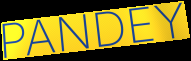
PANDEY